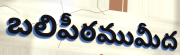
బలిపీఠముమీద